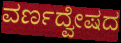
ವರ್ಣದ್ವೇಷದ